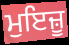
ਮੁਇਜ਼ੂ